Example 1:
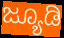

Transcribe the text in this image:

ಜ್ಯೂಡಿ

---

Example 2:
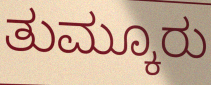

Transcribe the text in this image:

ತುಮ್ಕೂರು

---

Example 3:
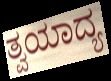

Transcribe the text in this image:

ತ್ವಯಾದ್ಯ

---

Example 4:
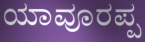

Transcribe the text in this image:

ಯಾವೂರಪ್ಪ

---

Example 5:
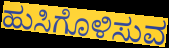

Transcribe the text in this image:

ಹುಸಿಗೊಳಿಸುವ